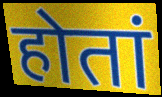
होतां